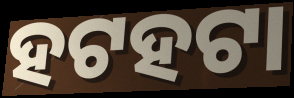
ହଟହଟା